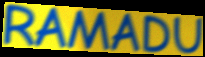
RAMADU